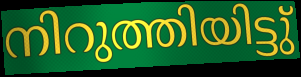
നിറുത്തിയിട്ടു്